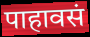
पाहावसं